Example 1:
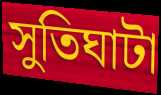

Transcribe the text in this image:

সুতিঘাটা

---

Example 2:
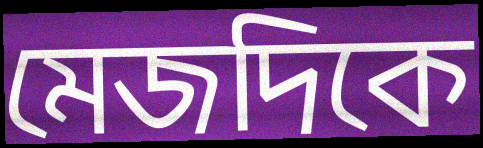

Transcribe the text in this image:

মেজদিকে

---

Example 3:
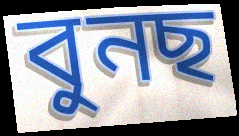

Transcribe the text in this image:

বুনছ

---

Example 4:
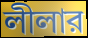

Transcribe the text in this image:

লীলার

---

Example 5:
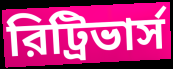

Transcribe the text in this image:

রিট্রিভার্স